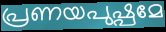
പ്രണയപുഷ്പമേ